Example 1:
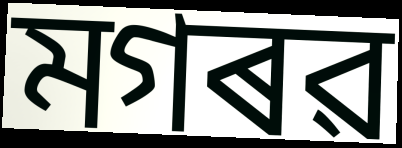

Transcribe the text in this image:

মগৰৱ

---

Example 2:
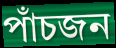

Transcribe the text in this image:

পাঁচজন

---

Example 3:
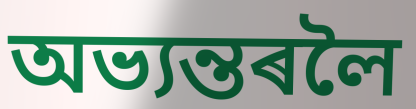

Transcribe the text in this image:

অভ্যন্তৰলৈ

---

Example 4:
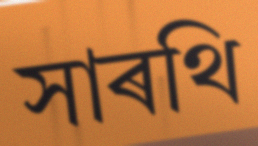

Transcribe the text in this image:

সাৰথি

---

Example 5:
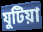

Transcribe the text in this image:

যুটিয়া